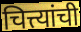
चित्त्यांची